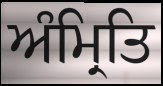
ਅੰਮ੍ਰਿਤਿ